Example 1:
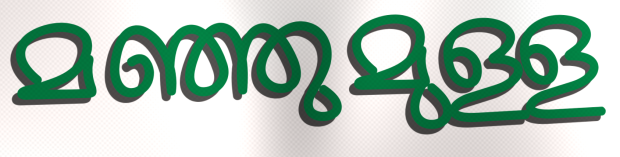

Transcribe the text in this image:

മഞ്ഞുമുള്ള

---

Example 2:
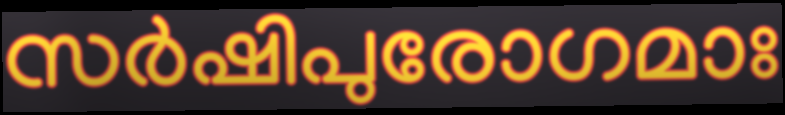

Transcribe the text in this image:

സർഷിപുരോഗമാഃ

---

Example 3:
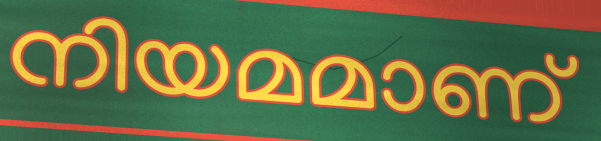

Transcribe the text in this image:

നിയമമാണ്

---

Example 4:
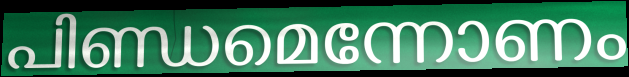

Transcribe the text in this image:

പിണ്ഡമെന്നോണം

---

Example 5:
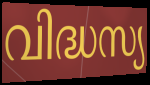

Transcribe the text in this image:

വിദ്ധസ്യ